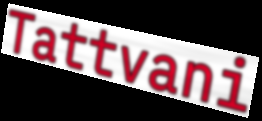
Tattvani